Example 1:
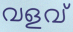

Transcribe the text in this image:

വളവ്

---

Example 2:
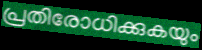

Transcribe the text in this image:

പ്രതിരോധിക്കുകയും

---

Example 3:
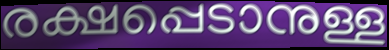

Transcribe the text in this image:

രക്ഷപ്പെടാനുള്ള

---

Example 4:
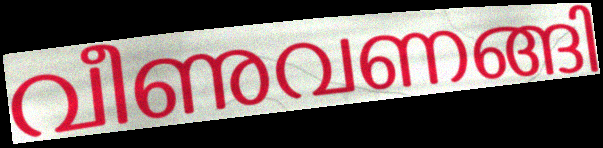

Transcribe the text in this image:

വീണുവണങ്ങി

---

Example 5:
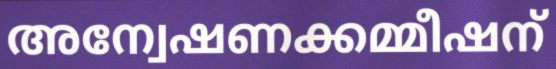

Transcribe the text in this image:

അന്വേഷണക്കമ്മീഷന്